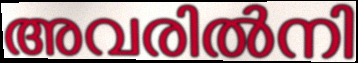
അവരിൽനി